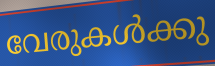
വേരുകൾക്കു